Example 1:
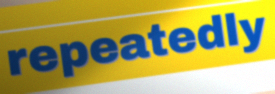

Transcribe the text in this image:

repeatedly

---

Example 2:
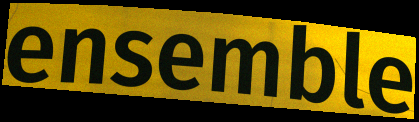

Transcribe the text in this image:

ensemble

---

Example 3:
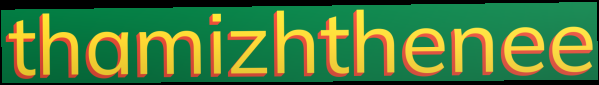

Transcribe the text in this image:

thamizhthenee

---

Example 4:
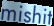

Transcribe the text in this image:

mishit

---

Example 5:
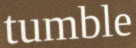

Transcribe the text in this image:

tumble